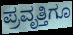
ಪ್ರವೃತ್ತಿಗೂ